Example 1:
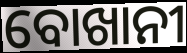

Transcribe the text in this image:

ବୋଖାନୀ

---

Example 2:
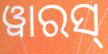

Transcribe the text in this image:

ୱାରସ୍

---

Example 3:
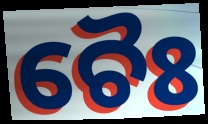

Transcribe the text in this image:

ଚୈଃ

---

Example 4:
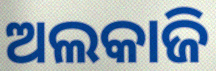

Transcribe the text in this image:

ଅଲକାଜି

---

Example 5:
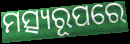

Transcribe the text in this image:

ମତ୍ସ୍ୟରୂପରେ